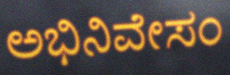
ಅಭಿನಿವೇಸಂ